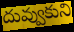
దువ్వుకుని